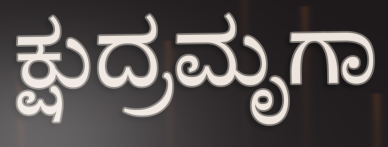
ಕ್ಷುದ್ರಮೃಗಾ